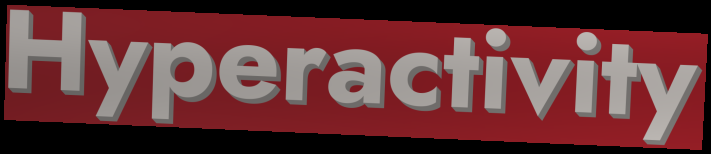
Hyperactivity